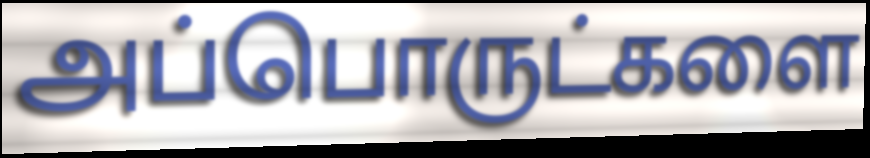
அப்பொருட்களை